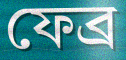
ফেব্র